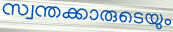
സ്വന്തക്കാരുടെയും